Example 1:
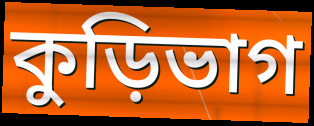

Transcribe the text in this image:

কুড়িভাগ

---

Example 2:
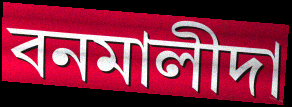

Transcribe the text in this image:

বনমালীদা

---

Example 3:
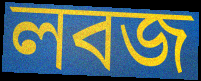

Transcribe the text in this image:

লবজ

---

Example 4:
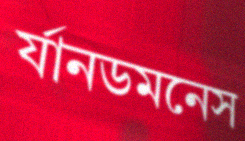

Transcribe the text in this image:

র্যানডমনেস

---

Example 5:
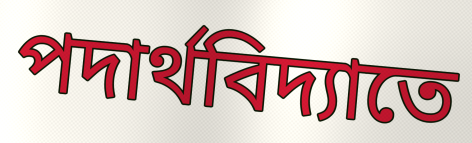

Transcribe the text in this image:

পদার্থবিদ্যাতে